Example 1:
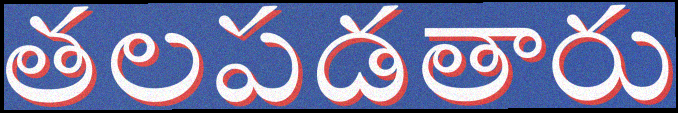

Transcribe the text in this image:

తలపడతారు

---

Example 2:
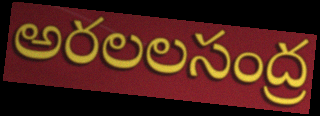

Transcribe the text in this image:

అరలలసంద్ర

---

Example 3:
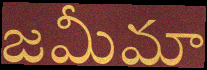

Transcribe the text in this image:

జమీమా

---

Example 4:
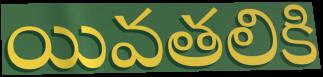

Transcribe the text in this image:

యివతలికి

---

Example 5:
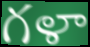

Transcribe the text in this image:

గళా